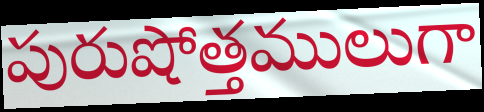
పురుషోత్తములుగా